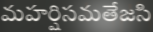
మహర్షిసమతేజసి